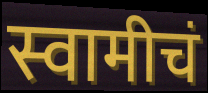
स्वामीचं